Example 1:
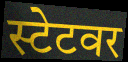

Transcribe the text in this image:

स्टेटवर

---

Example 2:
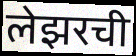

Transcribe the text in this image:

लेझरची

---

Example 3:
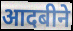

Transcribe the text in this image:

आदबीने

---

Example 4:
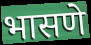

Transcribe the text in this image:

भासणे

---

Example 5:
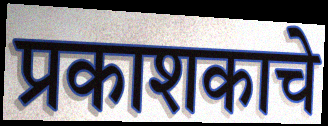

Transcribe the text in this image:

प्रकाशकाचे